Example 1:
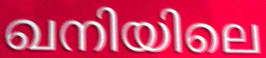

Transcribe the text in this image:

ഖനിയിലെ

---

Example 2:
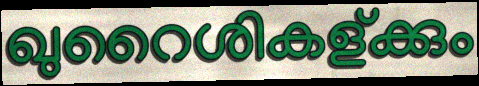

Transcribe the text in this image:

ഖുറൈശികള്ക്കും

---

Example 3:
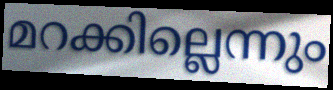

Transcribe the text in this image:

മറക്കില്ലെന്നും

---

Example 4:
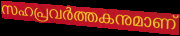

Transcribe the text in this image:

സഹപ്രവർത്തകനുമാണ്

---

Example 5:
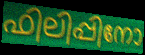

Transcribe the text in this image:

ഫിലിപ്പിനോ